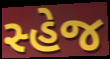
સ્હેજ